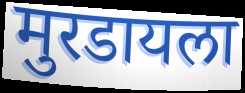
मुरडायला